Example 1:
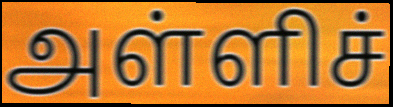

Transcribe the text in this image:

அள்ளிச்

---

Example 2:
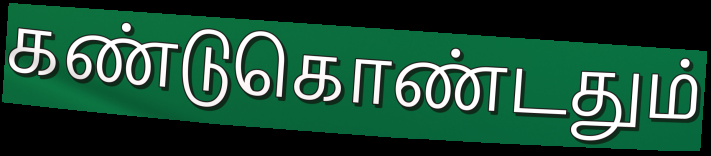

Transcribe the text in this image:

கண்டுகொண்டதும்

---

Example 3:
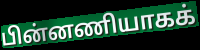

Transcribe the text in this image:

பின்னணியாகக்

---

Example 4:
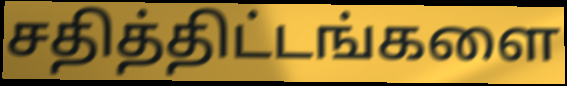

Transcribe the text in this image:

சதித்திட்டங்களை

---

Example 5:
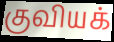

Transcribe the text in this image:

குவியக்